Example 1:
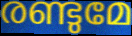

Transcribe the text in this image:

രണ്ടുമേ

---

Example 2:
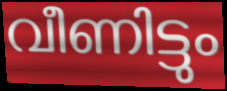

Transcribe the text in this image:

വീണിട്ടും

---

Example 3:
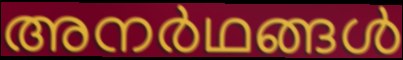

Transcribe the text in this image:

അനർഥങ്ങൾ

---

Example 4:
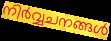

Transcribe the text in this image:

നിർവ്വചനങ്ങൾ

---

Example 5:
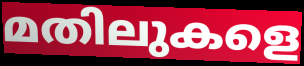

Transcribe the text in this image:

മതിലുകളെ